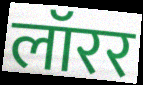
लॉरर